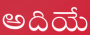
అదియే